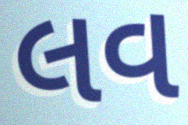
લવ